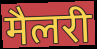
मैलरी